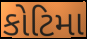
કોટિમા